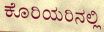
ಕೊರಿಯರಿನಲ್ಲಿ